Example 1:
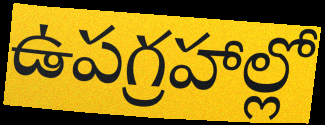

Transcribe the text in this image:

ఉపగ్రహాల్లో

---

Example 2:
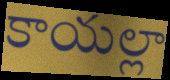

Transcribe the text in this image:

కాయల్లా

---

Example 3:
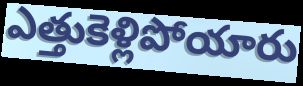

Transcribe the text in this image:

ఎత్తుకెళ్లిపోయారు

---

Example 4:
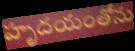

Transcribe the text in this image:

హృదయంతోను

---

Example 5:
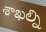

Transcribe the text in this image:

శాఖల్ని